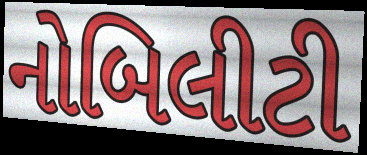
નોબિલીટી